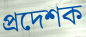
প্ৰদেশক